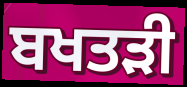
ਬਖਤੜੀ